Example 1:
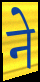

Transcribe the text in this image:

ने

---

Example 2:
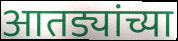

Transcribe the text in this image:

आतड्यांच्या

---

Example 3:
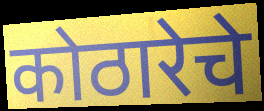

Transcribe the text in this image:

कोठारेचे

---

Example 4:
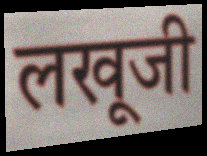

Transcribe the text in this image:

लखूजी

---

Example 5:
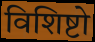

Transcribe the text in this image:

विशिष्टो